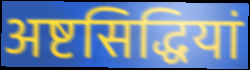
अष्टसिद्धियां